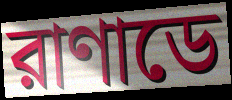
রাণাডে